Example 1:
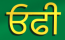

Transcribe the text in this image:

ਓਫੀ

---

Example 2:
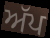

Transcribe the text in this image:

ਅੱਪ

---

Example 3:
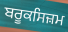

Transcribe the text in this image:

ਬਰੂਕਸਿਜ਼ਮ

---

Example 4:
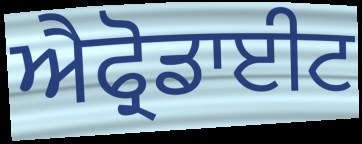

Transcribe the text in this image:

ਐਫ੍ਰੋਡਾਈਟ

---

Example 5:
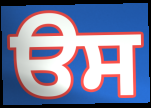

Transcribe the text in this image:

ੳਸ